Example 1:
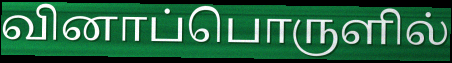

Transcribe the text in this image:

வினாப்பொருளில்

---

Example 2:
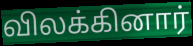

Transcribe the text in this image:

விலக்கினார்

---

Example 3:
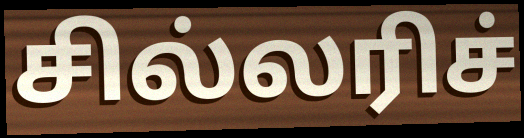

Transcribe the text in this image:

சில்லரிச்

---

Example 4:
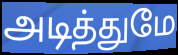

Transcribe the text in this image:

அடித்துமே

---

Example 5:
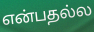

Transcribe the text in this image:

என்பதல்ல